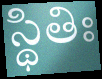
స్థితిః